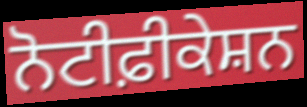
ਨੋਟੀਫ਼ੀਕੇਸ਼ਨ